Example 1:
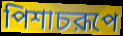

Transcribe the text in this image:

পিশাচরূপে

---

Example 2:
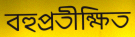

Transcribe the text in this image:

বহুপ্রতীক্ষিত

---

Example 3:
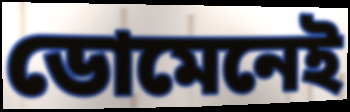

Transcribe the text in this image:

ডোমেনেই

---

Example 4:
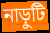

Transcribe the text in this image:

নাড়ুটি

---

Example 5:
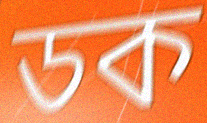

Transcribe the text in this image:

ডক